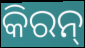
କିରନ୍